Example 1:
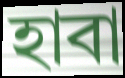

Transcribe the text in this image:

হাবা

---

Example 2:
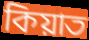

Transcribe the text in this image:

কিয়াত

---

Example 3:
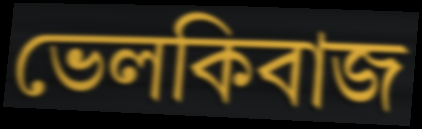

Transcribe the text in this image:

ভেলকিবাজ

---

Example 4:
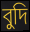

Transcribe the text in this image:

বুদি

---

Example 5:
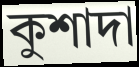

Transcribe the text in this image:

কুশাদা